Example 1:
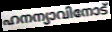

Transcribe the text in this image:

ഹനന്യാവിനോട്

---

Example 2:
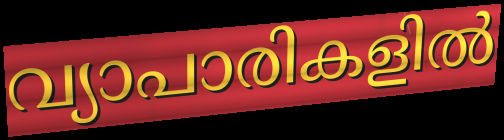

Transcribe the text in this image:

വ്യാപാരികളിൽ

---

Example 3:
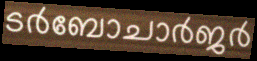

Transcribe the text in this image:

ടർബോചാർജർ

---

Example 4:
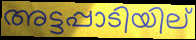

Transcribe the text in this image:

അട്ടപ്പാടിയില്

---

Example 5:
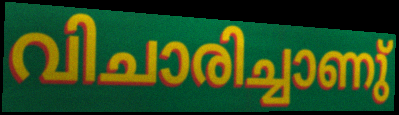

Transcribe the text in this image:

വിചാരിച്ചാണു്